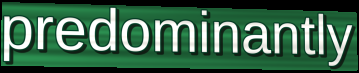
predominantly